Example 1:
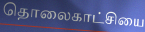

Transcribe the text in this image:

தொலைகாட்சியை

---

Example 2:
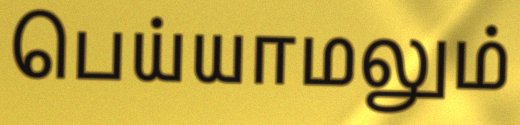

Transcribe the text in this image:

பெய்யாமலும்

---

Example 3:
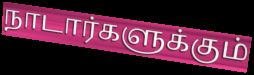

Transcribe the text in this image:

நாடார்களுக்கும்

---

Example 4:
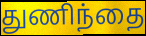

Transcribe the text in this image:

துணிந்தை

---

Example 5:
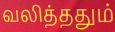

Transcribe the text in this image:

வலித்ததும்